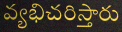
వ్యభిచరిస్తారు